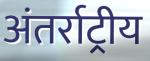
अंतर्राट्रीय